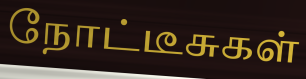
நோட்டீசுகள்